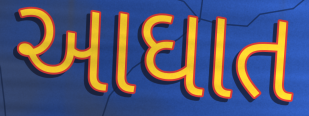
આઘાત